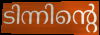
ടിന്നിന്റെ